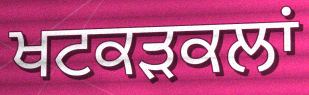
ਖਟਕੜਕਲਾਂ